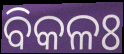
ବିକଳଃ